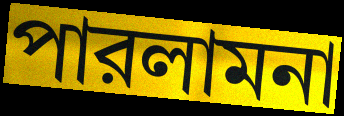
পারলামনা